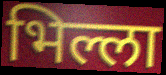
भिल्ला